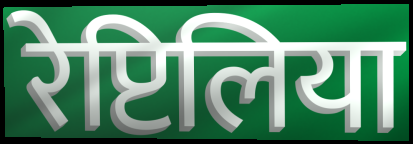
रेप्टिलिया